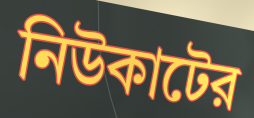
নিউকাটের